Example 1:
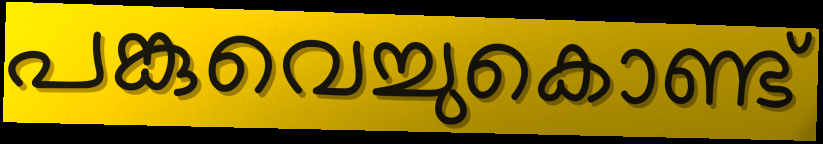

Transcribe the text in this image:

പങ്കുവെച്ചുകൊണ്ട്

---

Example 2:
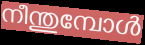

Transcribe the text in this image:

നീന്തുമ്പോൾ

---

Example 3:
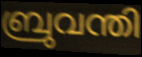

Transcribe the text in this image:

ബ്രുവന്തി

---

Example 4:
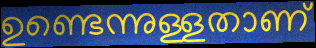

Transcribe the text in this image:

ഉണ്ടെന്നുള്ളതാണ്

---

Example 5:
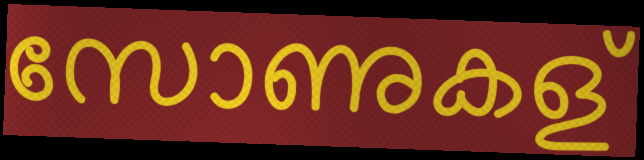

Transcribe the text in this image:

സോണുകള്